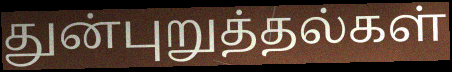
துன்புறுத்தல்கள்